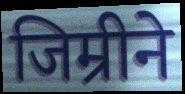
जिम्रीने